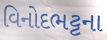
વિનોદભટ્ટના